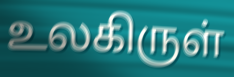
உலகிருள்